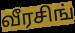
வீரசிங்